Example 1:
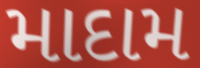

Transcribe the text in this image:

માદામ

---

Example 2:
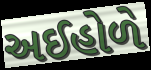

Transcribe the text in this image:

અઈહોળે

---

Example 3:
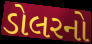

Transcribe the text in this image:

ડોલરનો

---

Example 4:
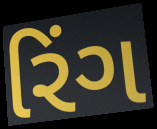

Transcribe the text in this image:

રિંગ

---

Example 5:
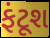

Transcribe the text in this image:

ફંટૂશ